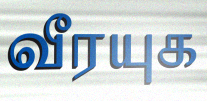
வீரயுக